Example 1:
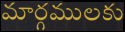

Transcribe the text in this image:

మార్గములకు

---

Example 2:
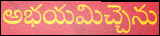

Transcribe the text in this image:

అభయమిచ్చెను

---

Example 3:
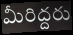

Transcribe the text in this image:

మీరిద్దరు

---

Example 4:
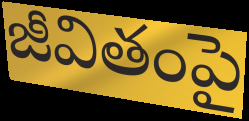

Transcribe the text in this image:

జీవితంపై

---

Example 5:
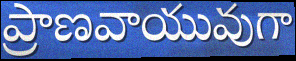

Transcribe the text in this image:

ప్రాణవాయువుగా